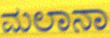
ಮಲಾನಾ